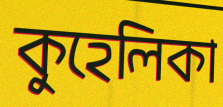
কুহেলিকা